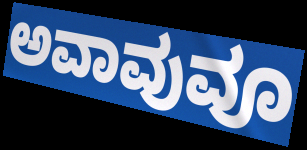
ಅವಾವುವೂ